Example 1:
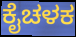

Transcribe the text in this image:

ಕೈಚಳಕ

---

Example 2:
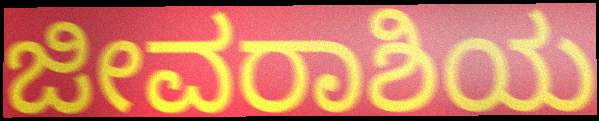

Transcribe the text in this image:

ಜೀವರಾಶಿಯ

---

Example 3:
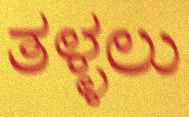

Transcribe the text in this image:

ತಳ್ಳಲು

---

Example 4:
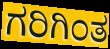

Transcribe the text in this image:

ಗರಿಗಿಂತ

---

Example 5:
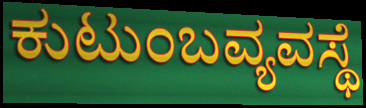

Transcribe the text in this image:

ಕುಟುಂಬವ್ಯವಸ್ಥೆ